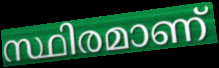
സ്ഥിരമാണ്